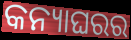
କନ୍ୟାଘରର